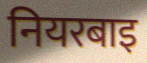
नियरबाइ